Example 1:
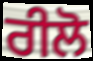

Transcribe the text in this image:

ਰੀਲੋ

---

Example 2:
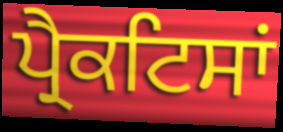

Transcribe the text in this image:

ਪ੍ਰੈਕਟਿਸਾਂ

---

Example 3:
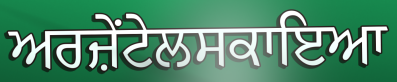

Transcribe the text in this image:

ਅਰਜ਼ੇਂਟੇਲਸਕਾਇਆ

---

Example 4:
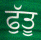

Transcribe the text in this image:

ਫੁੱਤੂ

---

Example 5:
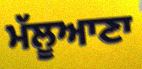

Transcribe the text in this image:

ਮੱਲੂਆਣਾ